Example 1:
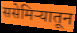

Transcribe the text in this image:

ससेमिऱ्यातून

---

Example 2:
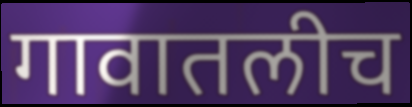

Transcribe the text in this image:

गावातलीच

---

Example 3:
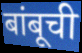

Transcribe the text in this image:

बांबूची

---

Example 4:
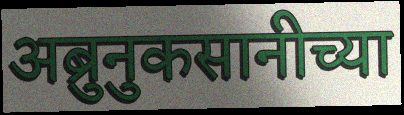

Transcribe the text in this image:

अब्रुनुकसानीच्या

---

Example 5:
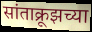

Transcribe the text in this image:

सांताक्रूझच्या